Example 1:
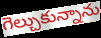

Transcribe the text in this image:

గెల్చుకున్నాను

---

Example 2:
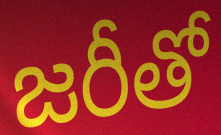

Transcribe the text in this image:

జరీతో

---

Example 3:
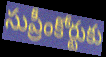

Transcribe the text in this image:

సుప్రీంకోర్టుకు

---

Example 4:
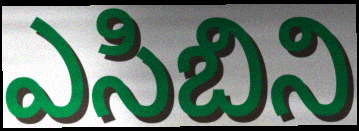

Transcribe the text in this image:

ఎసిబిని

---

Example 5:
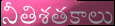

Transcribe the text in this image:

నీతిశతకాలు